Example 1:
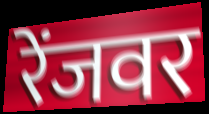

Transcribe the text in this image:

रेंजवर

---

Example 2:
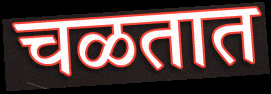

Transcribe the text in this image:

चळतात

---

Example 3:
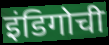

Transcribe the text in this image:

इंडिगोची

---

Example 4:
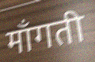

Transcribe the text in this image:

माँगती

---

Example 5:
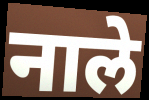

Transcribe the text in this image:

नाले